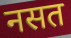
नसत